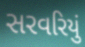
સરવરિયું